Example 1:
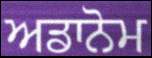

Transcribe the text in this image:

ਅਡਾਨੋਮ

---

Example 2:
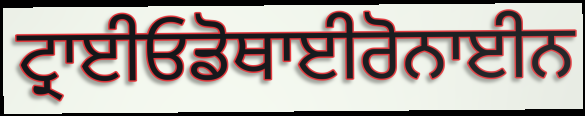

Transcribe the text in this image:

ਟ੍ਰਾਈਓਡੋਥਾਈਰੋਨਾਈਨ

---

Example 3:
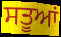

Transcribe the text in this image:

ਸਤੂਆਂ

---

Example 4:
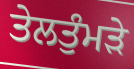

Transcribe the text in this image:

ਤੇਲਤੁੰਮੜੇ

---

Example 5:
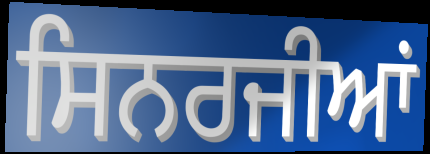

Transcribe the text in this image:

ਸਿਨਰਜੀਆਂ